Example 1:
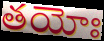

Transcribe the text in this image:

తయోః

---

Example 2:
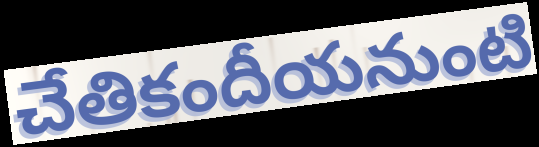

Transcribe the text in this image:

చేతికందీయనుంటి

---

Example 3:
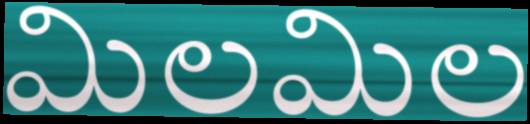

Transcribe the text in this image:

మిలమిల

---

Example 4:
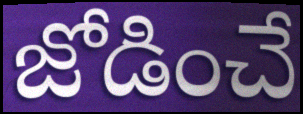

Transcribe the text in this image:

జోడించే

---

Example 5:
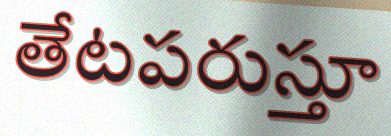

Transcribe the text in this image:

తేటపరుస్తూ